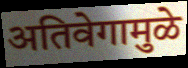
अतिवेगामुळे